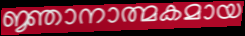
ജ്ഞാനാത്മകമായ